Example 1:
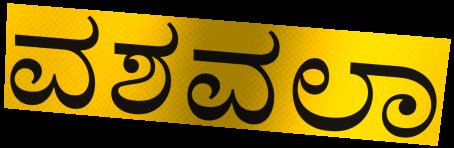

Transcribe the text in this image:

ವಶವಲಾ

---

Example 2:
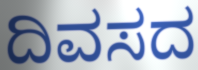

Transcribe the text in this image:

ದಿವಸದ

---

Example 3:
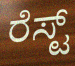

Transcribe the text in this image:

ರೆಸ್ಟ್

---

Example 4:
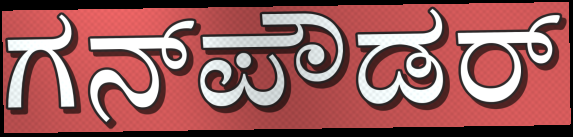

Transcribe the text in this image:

ಗನ್‌ಪೌಡರ್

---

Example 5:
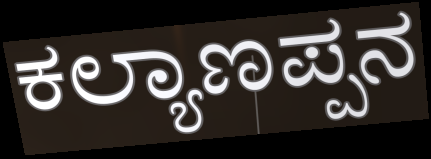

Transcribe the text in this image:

ಕಲ್ಯಾಣಪ್ಪನ